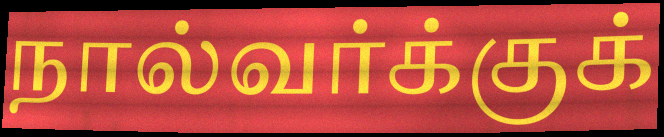
நால்வர்க்குக்